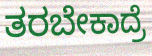
ತರಬೇಕಾದ್ರೆ